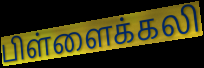
பிள்ளைக்கலி